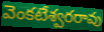
వెంకటేశ్వరరావు